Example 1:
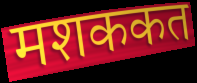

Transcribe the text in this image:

मशककत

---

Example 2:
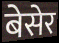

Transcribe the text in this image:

बेसेर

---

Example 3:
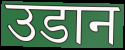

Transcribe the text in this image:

उडान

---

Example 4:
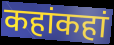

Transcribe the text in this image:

कहांकहां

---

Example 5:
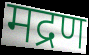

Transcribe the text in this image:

मद्रण